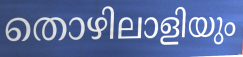
തൊഴിലാളിയും